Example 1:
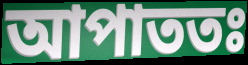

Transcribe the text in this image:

আপাততঃ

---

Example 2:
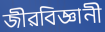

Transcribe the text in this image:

জীৱবিজ্ঞানী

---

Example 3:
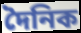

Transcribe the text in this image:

দৈনিক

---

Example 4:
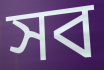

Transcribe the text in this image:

সব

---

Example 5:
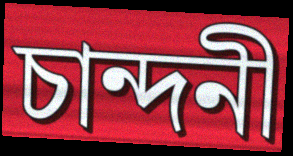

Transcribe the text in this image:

চান্দনী